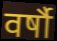
वर्षौ